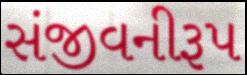
સંજીવનીરૂપ